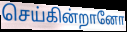
செய்கின்றானோ